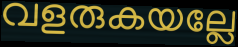
വളരുകയല്ലേ